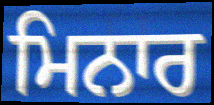
ਮਿਨਾਰ